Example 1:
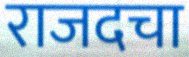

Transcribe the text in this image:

राजदचा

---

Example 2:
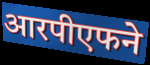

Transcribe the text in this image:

आरपीएफने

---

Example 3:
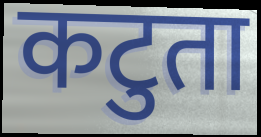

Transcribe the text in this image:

कटुता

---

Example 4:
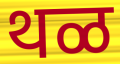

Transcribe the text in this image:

थळ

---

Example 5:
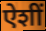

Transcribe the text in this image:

ऐशीं